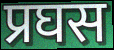
प्रघस